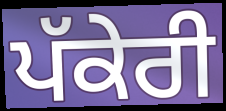
ਪੱਕੇਰੀ